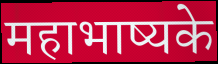
महाभाष्यके